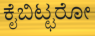
ಕೈಬಿಟ್ಟರೋ